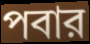
পবার